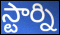
స్టార్ని